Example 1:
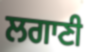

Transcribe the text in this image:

ਲਗਾਣੀ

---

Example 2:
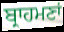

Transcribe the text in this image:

ਬ੍ਰਾਹਮਣਾਂ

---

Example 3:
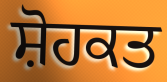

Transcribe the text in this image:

ਸ਼ੋਹਕਤ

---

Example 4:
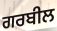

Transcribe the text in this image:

ਗਰਬੀਲ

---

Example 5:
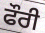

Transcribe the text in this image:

ਫੌਰੀ